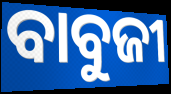
ବାବୁଜୀ